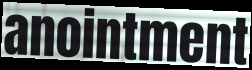
anointment